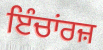
ਇੰਚਾਂਰਜ਼